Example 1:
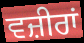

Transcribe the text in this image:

ਵਜ਼ੀਰਾਂ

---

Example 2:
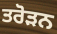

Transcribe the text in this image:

ਤਰੋੜਨ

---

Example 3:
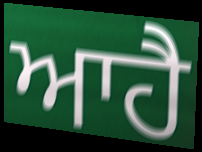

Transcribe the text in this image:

ਆਹੈ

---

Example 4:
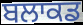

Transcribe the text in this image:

ਬਲਾਕਡ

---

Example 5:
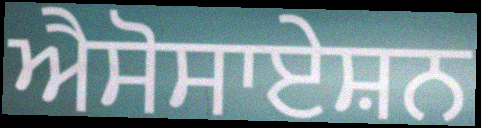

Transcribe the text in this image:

ਐਸੋਸਾਏਸ਼ਨ